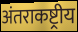
अंतराकष्ट्रीय